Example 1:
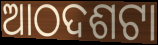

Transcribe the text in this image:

ଆଠଦଶଟା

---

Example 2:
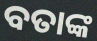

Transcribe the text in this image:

ବତାଙ୍କ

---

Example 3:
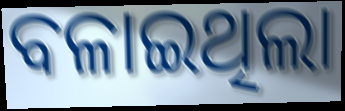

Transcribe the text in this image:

ବଳାଇଥିଲା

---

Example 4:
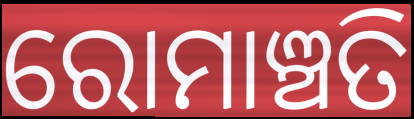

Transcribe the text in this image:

ରୋମାଞ୍ଚତି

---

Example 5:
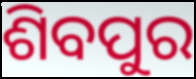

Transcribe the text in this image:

ଶିବପୁର